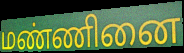
மண்ணினை